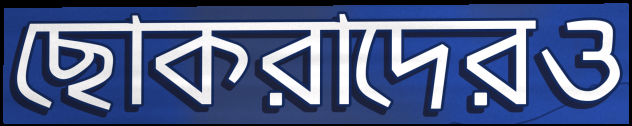
ছোকরাদেরও